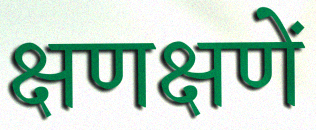
क्षणक्षणें